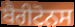
ਬੈਰੀਟੋਨਸ